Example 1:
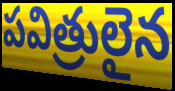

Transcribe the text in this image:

పవిత్రులైన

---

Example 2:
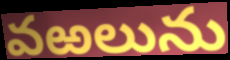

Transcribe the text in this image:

వఱలును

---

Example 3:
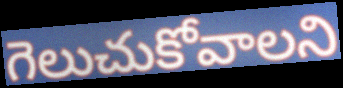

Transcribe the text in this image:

గెలుచుకోవాలని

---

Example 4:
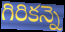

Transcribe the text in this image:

గిరికన్నె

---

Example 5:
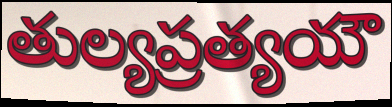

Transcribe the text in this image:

తుల్యప్రత్యయౌ